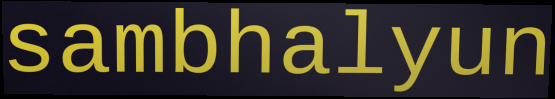
sambhalyun